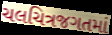
ચલચિત્રજગતમાં